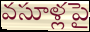
వసూళ్లపై